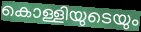
കൊള്ളിയുടെയും